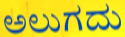
ಅಲುಗದು